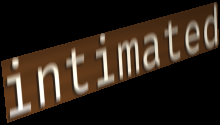
intimated